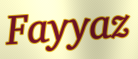
Fayyaz